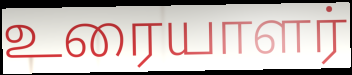
உரையாளர்